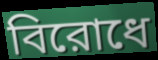
বিরোধে